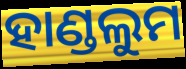
ହାଣ୍ଡଲୁମ